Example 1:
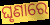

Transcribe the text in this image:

ଘୃଣାରେ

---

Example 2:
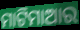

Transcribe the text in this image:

ମାଟିମାଆର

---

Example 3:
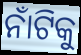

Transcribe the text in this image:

ନାଁଟିକୁ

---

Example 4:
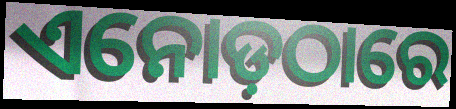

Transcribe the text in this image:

ଏନୋଡ଼ଠାରେ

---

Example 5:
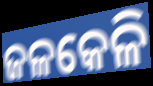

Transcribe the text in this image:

ଜଳକେଳି